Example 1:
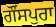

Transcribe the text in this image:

ਗੌਂਸਪੁਰਾ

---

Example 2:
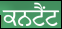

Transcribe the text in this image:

ਕਨਟੈਂਟ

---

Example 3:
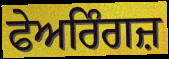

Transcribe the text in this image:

ਫੇਅਰਿੰਗਜ਼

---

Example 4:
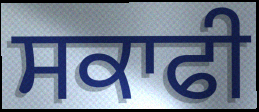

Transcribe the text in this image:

ਸਕਾਫੀ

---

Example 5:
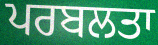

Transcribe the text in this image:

ਪਰਬਲਤਾ